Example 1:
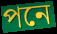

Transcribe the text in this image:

পনে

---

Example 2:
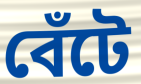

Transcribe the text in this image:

বেঁটে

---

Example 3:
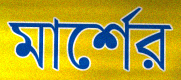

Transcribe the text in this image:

মার্শের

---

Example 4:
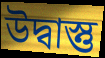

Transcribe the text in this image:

উদ্বাস্তু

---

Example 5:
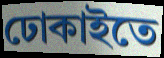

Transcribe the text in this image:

ঢোকাইতে